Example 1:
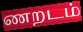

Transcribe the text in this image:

ணறடம்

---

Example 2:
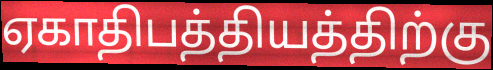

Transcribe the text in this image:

ஏகாதிபத்தியத்திற்கு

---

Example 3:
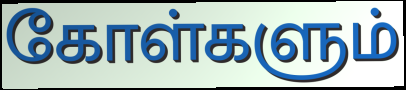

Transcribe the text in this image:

கோள்களும்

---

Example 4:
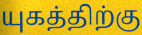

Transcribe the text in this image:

யுகத்திற்கு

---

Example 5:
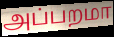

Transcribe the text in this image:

அப்பறமா